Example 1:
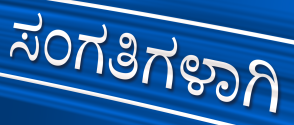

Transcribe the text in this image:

ಸಂಗತಿಗಳಾಗಿ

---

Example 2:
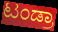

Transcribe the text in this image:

ಟಂಡ್ರಾ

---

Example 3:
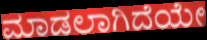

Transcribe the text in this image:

ಮಾಡಲಾಗಿದೆಯೇ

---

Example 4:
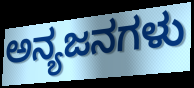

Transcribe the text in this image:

ಅನ್ಯಜನಗಳು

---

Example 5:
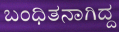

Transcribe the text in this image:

ಬಂಧಿತನಾಗಿದ್ದ